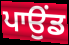
ਪਾਉਂਡ